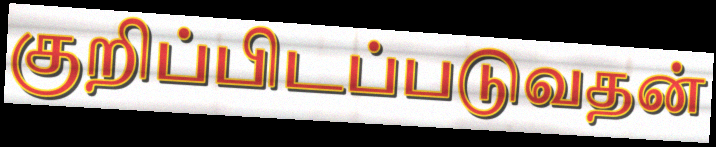
குறிப்பிடப்படுவதன்